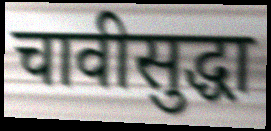
चावीसुद्धा